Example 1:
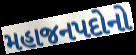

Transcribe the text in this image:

મહાજનપદોનો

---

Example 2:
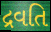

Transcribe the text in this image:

દ્રવતિ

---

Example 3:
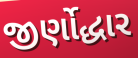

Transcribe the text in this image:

જીર્ણોદ્ધાર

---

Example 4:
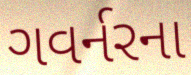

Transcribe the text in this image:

ગવર્નરના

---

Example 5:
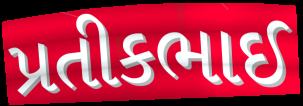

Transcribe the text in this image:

પ્રતીકભાઈ